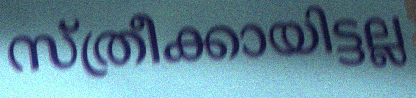
സ്ത്രീക്കായിട്ടല്ല